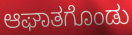
ಆಘಾತಗೊಂಡು